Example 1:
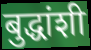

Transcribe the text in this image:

बुद्धांशी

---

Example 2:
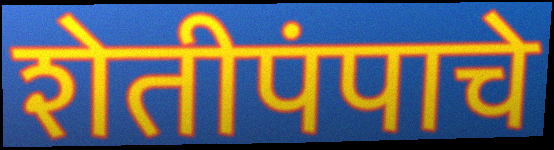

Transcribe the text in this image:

शेतीपंपाचे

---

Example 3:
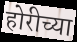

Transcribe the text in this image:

होरीच्या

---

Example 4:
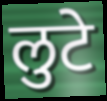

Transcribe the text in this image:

लुटे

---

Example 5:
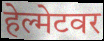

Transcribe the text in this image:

हेल्मेटवर